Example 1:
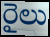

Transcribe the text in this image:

రైలు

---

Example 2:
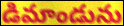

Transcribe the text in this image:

డిమాండును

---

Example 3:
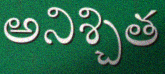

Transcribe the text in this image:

అనిశ్చిత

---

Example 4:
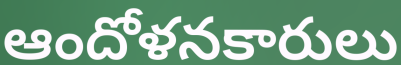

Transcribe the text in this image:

ఆందోళనకారులు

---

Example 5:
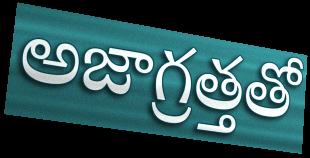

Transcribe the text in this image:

అజాగ్రత్తతో